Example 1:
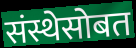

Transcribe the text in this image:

संस्थेसोबत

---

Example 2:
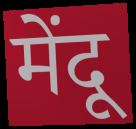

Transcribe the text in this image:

मेंदू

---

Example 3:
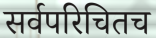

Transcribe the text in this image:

सर्वपरिचितच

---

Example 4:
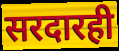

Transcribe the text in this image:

सरदारही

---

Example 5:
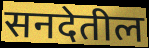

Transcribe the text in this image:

सनदेतील